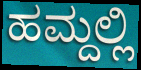
ಹಮ್ದಲ್ಲಿ